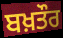
ਬਖ਼ਤੌਰ